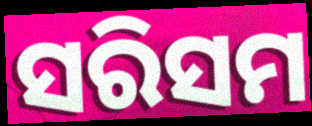
ସରିସମ